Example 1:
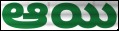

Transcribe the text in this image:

ఆయి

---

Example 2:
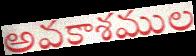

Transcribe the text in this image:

అవకాశముల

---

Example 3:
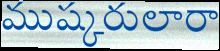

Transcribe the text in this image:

ముష్కరులారా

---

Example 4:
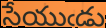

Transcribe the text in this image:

సేయుఁడు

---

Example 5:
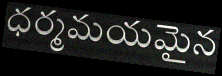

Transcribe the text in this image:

ధర్మమయమైన